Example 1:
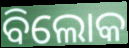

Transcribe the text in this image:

ବିଲୋକ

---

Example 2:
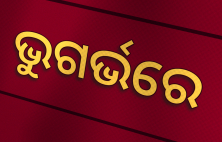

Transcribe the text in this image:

ଭୁଗର୍ଭରେ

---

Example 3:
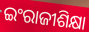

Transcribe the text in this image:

ଇଂରାଜୀଶିକ୍ଷା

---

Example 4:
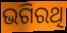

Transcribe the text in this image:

ଭଗିରଥି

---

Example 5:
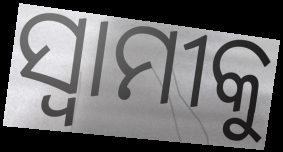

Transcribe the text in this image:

ସ୍ୱାମୀକୁ